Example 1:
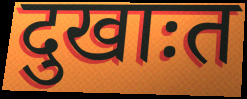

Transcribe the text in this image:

दुखाःत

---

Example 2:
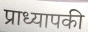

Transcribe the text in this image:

प्राध्यापकी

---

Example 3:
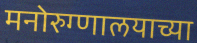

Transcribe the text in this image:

मनोरुग्णालयाच्या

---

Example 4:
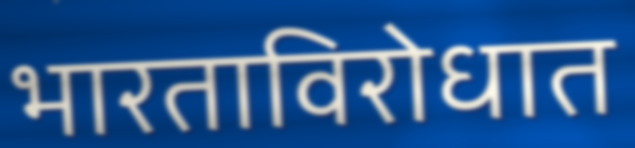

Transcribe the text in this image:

भारताविरोधात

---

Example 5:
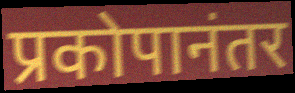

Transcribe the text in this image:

प्रकोपानंतर